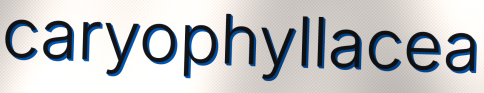
caryophyllacea